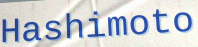
Hashimoto